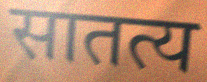
सातत्य